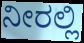
ನೀರಲ್ಲಿ